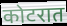
कोटरात